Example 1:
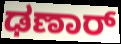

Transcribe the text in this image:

ಢಣಾರ್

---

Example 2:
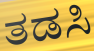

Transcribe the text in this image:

ತಡಸಿ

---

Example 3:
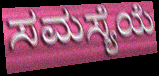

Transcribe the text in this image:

ಸಮಸ್ಯೆಯೆ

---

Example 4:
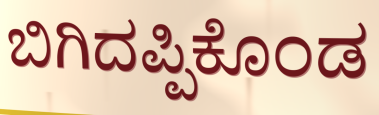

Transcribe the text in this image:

ಬಿಗಿದಪ್ಪಿಕೊಂಡ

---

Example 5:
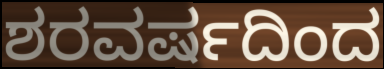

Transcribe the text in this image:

ಶರವರ್ಷದಿಂದ